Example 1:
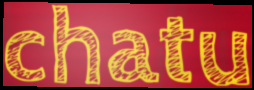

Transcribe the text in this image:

chatu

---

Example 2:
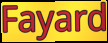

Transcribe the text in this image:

Fayard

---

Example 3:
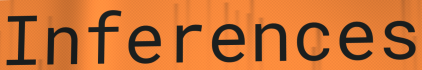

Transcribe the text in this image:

Inferences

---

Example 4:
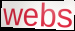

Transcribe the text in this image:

webs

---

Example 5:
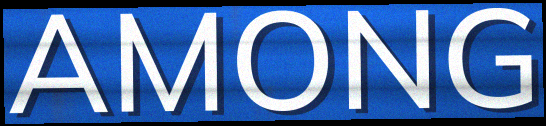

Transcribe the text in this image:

AMONG